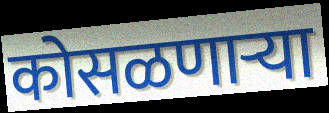
कोसळणाऱ्या